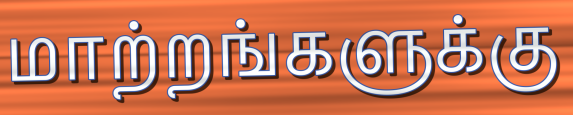
மாற்றங்களுக்கு